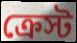
ক্রেস্ট